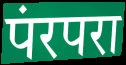
पंरपरा